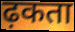
ढ़कता